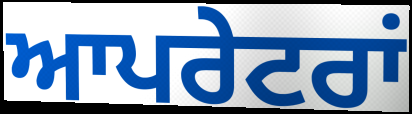
ਆਪਰੇਟਰਾਂ